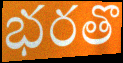
భరతొ